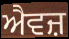
ਐਵਜ਼